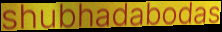
shubhadabodas